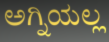
ಅಗ್ನಿಯಲ್ಲ